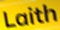
Laith